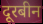
दूरबीन